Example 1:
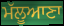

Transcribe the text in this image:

ਮੱਲੂਆਣਾ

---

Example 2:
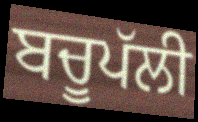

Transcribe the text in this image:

ਬਚੂਪੱਲੀ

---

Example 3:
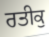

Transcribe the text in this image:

ਰਤੀਕੁ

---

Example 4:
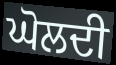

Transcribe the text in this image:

ਘੋਲਦੀ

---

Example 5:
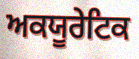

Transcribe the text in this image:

ਅਕਯੂਰੇਟਿਕ